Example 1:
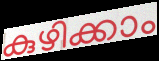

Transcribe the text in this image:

കുഴിക്കാം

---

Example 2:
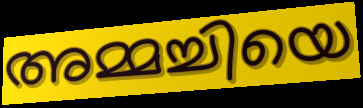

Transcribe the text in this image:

അമ്മച്ചിയെ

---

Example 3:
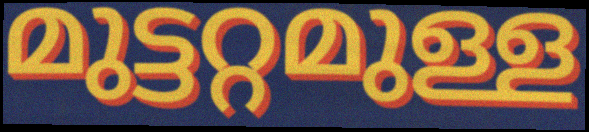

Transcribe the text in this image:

മുട്ടറ്റമുള്ള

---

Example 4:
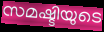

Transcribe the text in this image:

സമഷ്ടിയുടെ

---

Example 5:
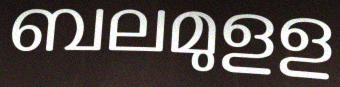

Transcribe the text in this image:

ബലമുളള